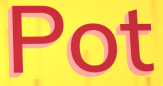
Pot